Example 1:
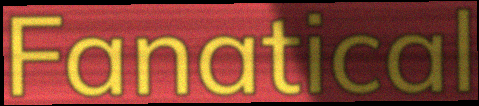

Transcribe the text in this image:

Fanatical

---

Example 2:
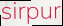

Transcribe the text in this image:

sirpur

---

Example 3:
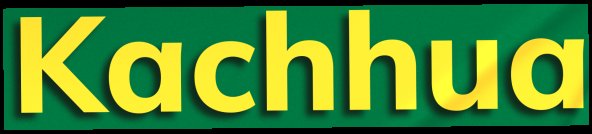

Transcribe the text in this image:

Kachhua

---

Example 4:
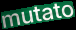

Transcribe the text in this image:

mutato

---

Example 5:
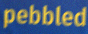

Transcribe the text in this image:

pebbled